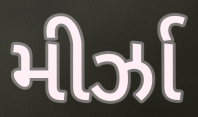
મીર્ઝા